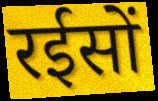
रईसों